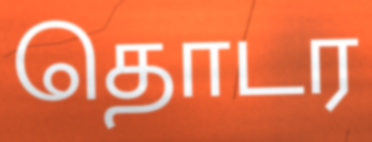
தொடர